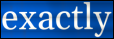
exactly